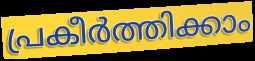
പ്രകീർത്തിക്കാം